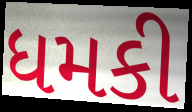
ધમકી